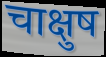
चाक्षुष